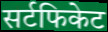
सर्टफिकेट